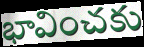
భావించకు